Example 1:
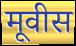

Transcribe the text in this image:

मूवीस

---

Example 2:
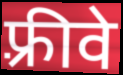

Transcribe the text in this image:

फ़्रीवे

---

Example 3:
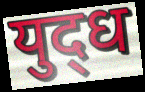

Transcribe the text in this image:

युद्ध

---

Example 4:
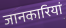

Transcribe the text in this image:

जानकारियां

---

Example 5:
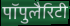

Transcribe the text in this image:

पॉपुलैरिटी